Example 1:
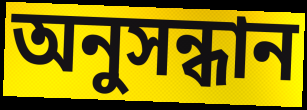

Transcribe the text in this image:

অনুসন্ধান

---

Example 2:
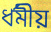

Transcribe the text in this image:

ৰ্ধমীয়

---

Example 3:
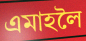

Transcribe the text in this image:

এমাহলৈ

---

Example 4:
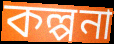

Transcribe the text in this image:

কল্পনা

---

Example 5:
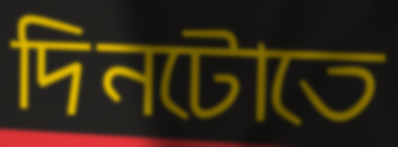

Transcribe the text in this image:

দিনটোতে